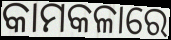
କାମକଳାରେ